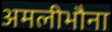
अमलीभौना